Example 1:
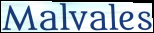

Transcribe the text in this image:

Malvales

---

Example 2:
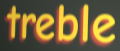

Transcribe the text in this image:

treble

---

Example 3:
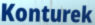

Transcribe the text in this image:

Konturek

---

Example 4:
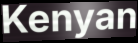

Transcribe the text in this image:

Kenyan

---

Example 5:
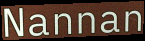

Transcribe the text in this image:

Nannan